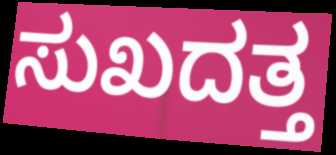
ಸುಖದತ್ತ